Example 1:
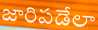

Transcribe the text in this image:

జారిపడేలా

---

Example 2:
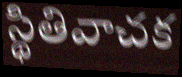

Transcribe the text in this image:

స్థితివాచక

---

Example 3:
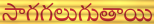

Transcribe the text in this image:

సాగగలుగుతాయి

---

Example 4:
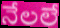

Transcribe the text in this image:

నేలలే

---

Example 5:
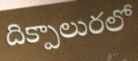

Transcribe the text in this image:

దిక్పాలురలో